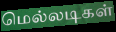
மெல்லடிகள்